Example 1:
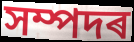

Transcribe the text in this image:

সম্পদৰ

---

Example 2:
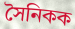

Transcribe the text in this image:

সৈনিকক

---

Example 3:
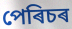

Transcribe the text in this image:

পেৰিচৰ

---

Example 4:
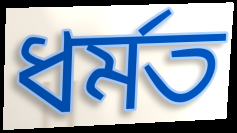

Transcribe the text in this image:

ধৰ্মত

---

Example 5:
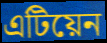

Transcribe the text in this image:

এটিয়েন